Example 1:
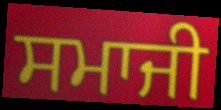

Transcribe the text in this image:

ਸਮਾਜੀ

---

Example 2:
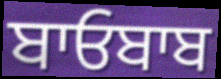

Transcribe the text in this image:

ਬਾਓਬਾਬ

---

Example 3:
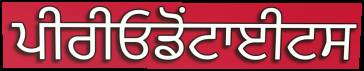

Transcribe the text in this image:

ਪੀਰੀਓਡੋਂਟਾਈਟਸ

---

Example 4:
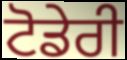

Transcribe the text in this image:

ਟੋਡੇਰੀ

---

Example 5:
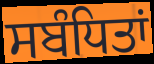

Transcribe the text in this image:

ਸਬੰਧਿਤਾਂ